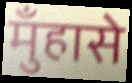
मुँहासे